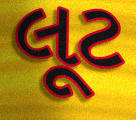
લૂટ